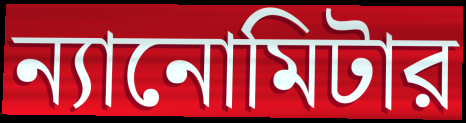
ন্যানোমিটার